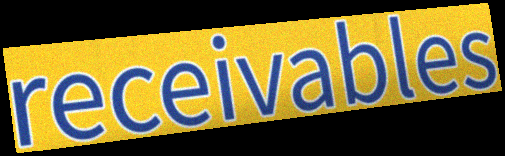
receivables